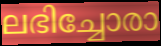
ലഭിച്ചോരാ